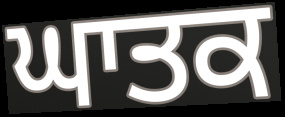
ਘਾਤਕ